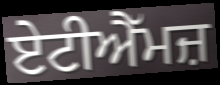
ਏਟੀਐੱਮਜ਼